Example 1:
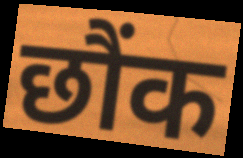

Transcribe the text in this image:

छौंक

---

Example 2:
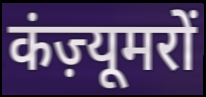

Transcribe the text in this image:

कंज़्यूमरों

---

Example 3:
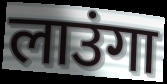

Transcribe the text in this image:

लाउंगा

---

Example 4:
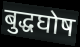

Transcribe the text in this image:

बुद्धघोष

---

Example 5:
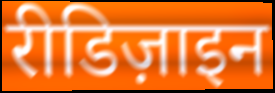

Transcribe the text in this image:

रीडिज़ाइन